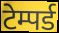
टेम्पर्ड